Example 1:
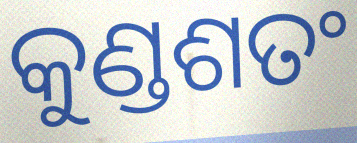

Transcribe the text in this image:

କୁଣ୍ଡଶତଂ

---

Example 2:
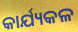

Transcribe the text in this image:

କାର୍ଯ୍ୟକଳ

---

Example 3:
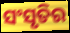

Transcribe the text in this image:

ସଂସୃତିର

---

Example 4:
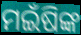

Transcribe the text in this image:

ମଇଁଷିଙ୍କ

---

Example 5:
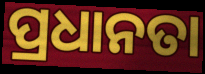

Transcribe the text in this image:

ପ୍ରଧାନତା